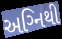
અગ્‍નિથી